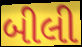
બીલી